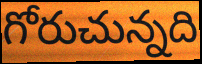
గోరుచున్నది